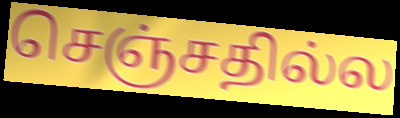
செஞ்சதில்ல